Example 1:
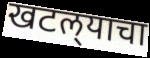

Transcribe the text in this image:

खटल्याचा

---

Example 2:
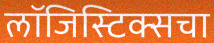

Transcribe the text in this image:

लॉजिस्टिक्सचा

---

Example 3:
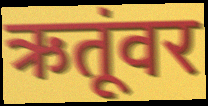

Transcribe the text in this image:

ऋतूंवर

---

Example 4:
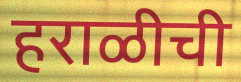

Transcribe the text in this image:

हराळीची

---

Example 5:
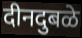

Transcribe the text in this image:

दीनदुबळे